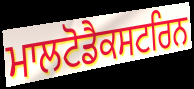
ਮਾਲਟੋਡੈਕਸਟਰਿਨ